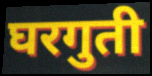
घरगुती